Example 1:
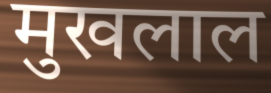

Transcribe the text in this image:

मुखलाल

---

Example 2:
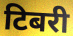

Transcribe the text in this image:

टिबरी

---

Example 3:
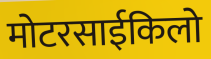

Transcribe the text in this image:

मोटरसाईकिलो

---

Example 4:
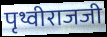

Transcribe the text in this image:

पृथ्वीराजजी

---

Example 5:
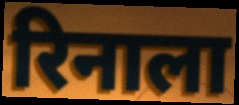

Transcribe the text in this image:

रिनाला